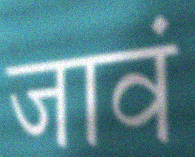
जावं